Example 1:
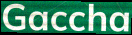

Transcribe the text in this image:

Gaccha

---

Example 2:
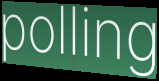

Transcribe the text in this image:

polling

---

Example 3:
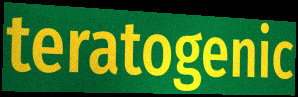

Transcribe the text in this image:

teratogenic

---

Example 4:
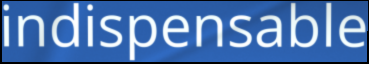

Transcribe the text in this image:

indispensable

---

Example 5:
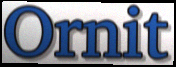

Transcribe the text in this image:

Ornit